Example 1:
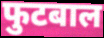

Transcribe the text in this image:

फुटबाल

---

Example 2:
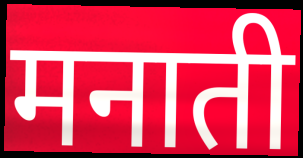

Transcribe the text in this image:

मनाती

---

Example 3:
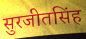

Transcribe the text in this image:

सुरजीतसिंह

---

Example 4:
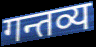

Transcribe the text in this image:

गन्तव्य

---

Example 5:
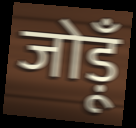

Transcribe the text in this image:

जोड़ूँ